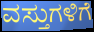
ವಸ್ತುಗಳಿಗೆ